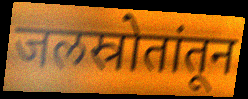
जलस्रोतांतून